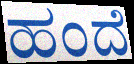
ಹಂದೆ